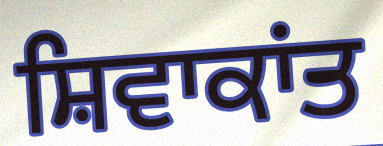
ਸ਼ਿਵਾਕਾਂਤ